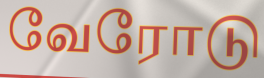
வேரோடு